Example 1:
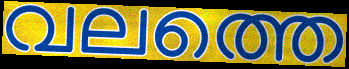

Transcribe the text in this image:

വലത്തെ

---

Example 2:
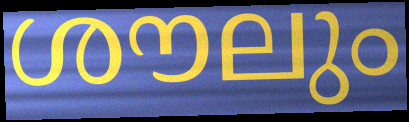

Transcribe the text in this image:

ശൗലും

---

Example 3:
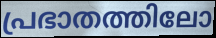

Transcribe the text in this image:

പ്രഭാതത്തിലോ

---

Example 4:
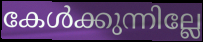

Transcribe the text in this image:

കേൾക്കുന്നില്ലേ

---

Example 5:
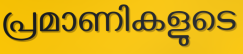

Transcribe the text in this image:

പ്രമാണികളുടെ